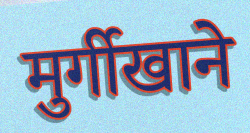
मुर्गीखाने